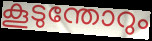
കൂടുന്തോറും